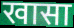
खासा